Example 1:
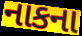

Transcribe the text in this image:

નાકના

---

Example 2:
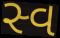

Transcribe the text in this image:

સ્વ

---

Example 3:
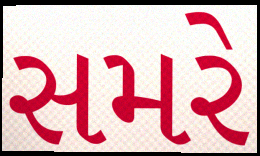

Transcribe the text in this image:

સમરે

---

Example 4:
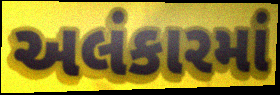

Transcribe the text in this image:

અલંકારમાં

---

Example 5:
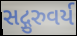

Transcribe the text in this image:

સદ્ગુરુવર્ય